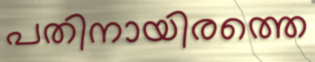
പതിനായിരത്തെ